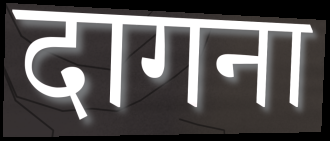
दागना